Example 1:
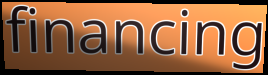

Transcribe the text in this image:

financing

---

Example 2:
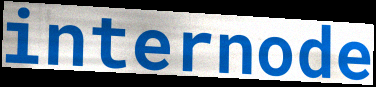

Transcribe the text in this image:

internode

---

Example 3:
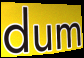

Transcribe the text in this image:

dum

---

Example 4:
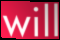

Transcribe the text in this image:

will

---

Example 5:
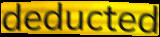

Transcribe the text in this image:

deducted